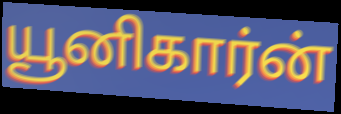
யூனிகார்ன்